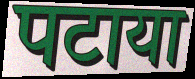
पटाया